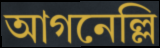
আগনেল্লি